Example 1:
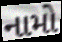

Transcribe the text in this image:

નામો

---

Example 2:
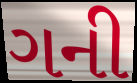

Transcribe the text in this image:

ગની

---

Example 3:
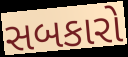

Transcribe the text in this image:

સબકારો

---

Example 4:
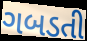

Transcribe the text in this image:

ગબડતી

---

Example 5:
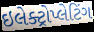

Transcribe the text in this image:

ઇલેક્ટ્રોપ્લેટિંગ